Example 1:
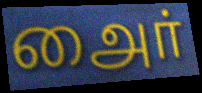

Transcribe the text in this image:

அைர்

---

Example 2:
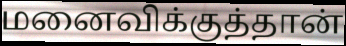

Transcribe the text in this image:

மனைவிக்குத்தான்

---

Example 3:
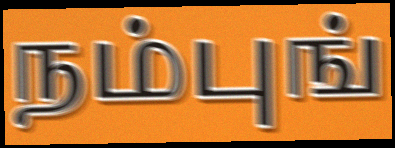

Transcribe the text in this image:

நம்புங்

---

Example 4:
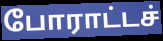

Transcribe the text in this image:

போராட்டச்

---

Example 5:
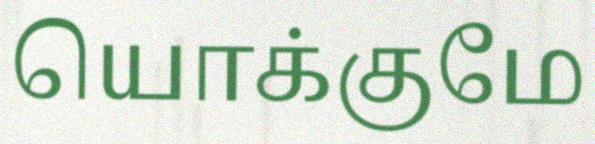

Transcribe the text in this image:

யொக்குமே